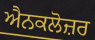
ਐਨਕਲੋਜ਼ਰ